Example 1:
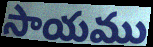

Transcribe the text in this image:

సాయము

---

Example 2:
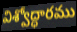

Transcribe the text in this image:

విశ్వోద్ధారము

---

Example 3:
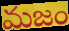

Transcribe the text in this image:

మజం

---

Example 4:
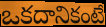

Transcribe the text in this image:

ఒకదానికంటే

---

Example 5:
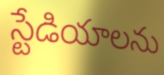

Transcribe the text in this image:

స్టేడియాలను